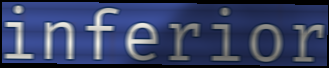
inferior